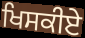
ਖਿਸਕੀਏ